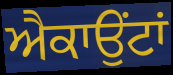
ਐਕਾਉਂਟਾਂ